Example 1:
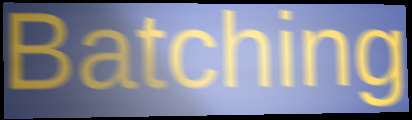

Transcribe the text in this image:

Batching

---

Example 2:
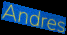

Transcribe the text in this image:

Andres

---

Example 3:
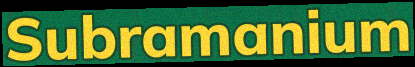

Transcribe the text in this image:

Subramanium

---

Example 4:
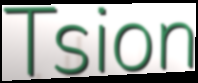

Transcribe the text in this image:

Tsion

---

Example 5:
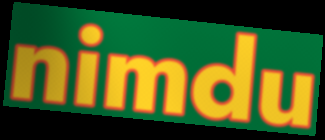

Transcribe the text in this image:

nimdu